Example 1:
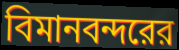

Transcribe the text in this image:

বিমানবন্দরের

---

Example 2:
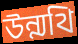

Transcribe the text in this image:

উন্মথি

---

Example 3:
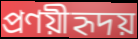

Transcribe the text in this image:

প্রণয়ীহৃদয়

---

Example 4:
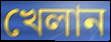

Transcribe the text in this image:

খেলান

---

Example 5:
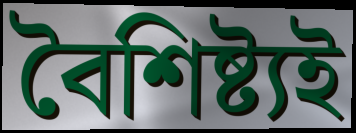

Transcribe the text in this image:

বৈশিষ্ট্যই